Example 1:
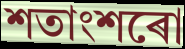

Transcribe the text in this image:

শতাংশৰো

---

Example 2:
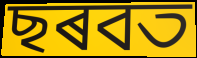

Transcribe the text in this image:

ছৰবত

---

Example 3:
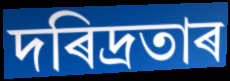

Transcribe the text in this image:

দৰিদ্ৰতাৰ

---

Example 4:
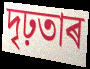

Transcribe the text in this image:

দৃঢ়তাৰ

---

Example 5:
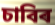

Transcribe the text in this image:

চাবিৰ